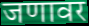
जणावर